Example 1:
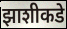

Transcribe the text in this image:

झाशीकडे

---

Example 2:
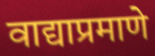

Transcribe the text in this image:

वाद्याप्रमाणे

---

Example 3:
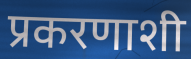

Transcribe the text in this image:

प्रकरणाशी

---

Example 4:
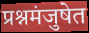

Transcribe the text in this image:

प्रश्नमंजुषेत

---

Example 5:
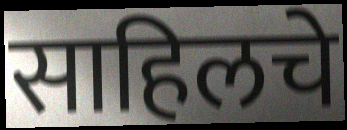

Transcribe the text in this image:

साहिलचे